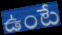
ఉంటే